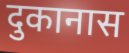
दुकानास